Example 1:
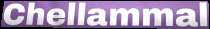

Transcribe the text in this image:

Chellammal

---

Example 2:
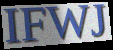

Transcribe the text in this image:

IFWJ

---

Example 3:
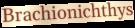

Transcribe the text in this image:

Brachionichthys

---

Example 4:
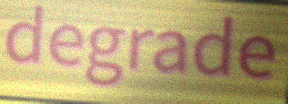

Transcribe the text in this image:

degrade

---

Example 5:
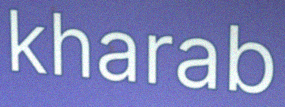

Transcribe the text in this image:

kharab